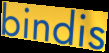
bindis